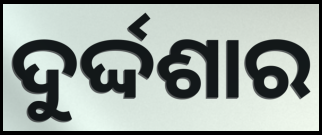
ଦୁର୍ଦ୍ଦଶାର